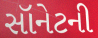
સૉનેટની